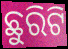
ଛୁରିଟି